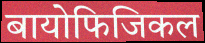
बायोफिजिकल